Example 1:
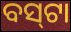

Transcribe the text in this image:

ବସ୍‍ଟା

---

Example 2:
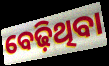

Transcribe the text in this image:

ବେଢ଼ିଥିବା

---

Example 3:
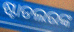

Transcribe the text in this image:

ଷ୍ଟାଡଲରଙ୍କ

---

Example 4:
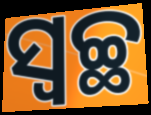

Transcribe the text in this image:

ସ୍ଵଚ୍ଛ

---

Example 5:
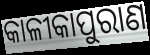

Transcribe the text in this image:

କାଳୀକାପୁରାଣ